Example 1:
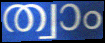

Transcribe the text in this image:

ത്വാം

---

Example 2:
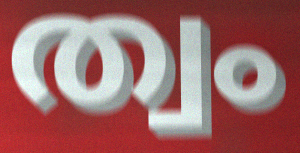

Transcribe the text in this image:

ത്വം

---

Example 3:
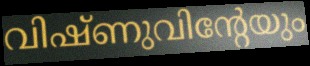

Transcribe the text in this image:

വിഷ്ണുവിന്റേയും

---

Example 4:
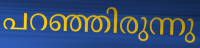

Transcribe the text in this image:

പറഞ്ഞിരുന്നു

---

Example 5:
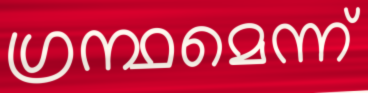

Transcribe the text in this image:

ഗ്രന്ഥമെന്ന്